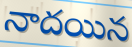
నాదయిన